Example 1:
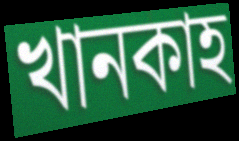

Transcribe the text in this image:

খানকাহ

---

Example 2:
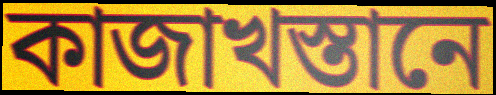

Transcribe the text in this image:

কাজাখস্তানে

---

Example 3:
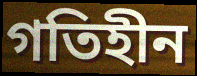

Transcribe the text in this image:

গতিহীন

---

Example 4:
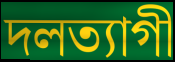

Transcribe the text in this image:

দলত্যাগী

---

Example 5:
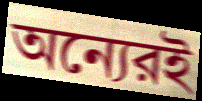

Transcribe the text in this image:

অন্যেরই